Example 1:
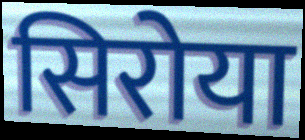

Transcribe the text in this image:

सिरोया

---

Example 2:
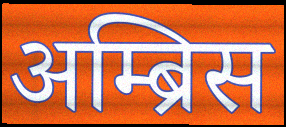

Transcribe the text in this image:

अम्ब्रिस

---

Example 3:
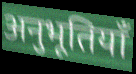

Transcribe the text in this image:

अनुभूतियाँ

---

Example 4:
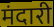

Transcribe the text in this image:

मंदारी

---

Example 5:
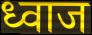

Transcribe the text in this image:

ध्वाज